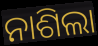
ନାଶିଲା